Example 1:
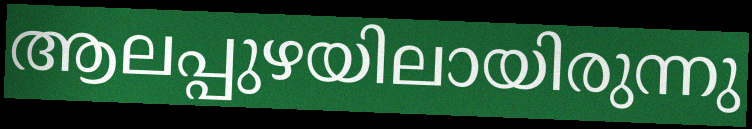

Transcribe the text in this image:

ആലപ്പുഴയിലായിരുന്നു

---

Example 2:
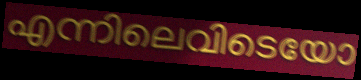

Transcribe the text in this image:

എന്നിലെവിടെയോ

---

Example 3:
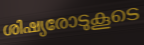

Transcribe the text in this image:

ശിഷ്യരോടുകൂടെ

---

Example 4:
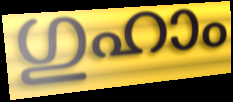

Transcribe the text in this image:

ഗുഹാം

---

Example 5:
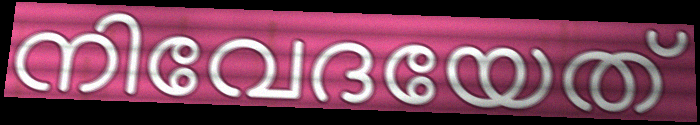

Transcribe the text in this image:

നിവേദയേത്